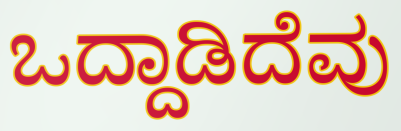
ಒದ್ದಾಡಿದೆವು